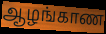
ஆழங்காண